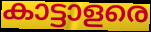
കാട്ടാളരെ